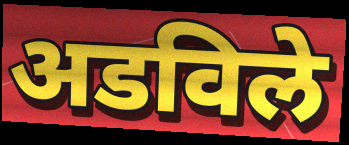
अडविले